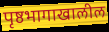
पृष्ठभागाखालील